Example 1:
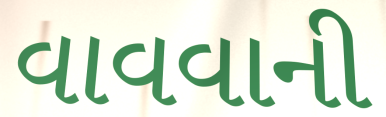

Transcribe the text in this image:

વાવવાની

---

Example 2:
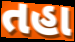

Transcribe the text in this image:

તહા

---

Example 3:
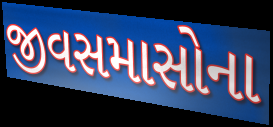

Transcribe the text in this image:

જીવસમાસોના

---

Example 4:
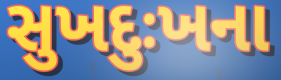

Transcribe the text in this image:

સુખદુઃખના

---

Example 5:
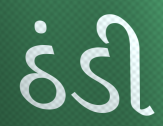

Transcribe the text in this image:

ઠંડી